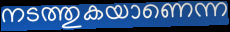
നടത്തുകയാണെന്ന